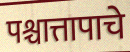
पश्चात्तापाचे